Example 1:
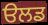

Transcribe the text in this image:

ੳਲਡ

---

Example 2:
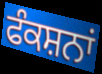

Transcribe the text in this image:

ਫੰਕਸ਼ਨਾਂ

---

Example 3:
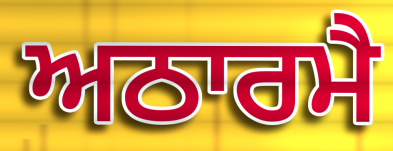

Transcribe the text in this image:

ਅਠਾਰਮੈ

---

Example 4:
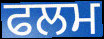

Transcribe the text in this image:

ਫਲਮ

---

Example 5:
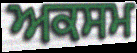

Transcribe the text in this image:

ਅਕਸਮ